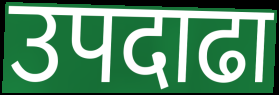
उपदाढा